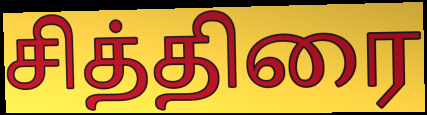
சித்திரை